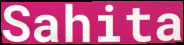
Sahita